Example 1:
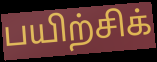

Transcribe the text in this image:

பயிற்சிக்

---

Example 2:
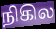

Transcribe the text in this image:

நிகில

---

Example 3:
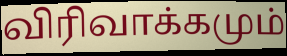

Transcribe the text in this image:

விரிவாக்கமும்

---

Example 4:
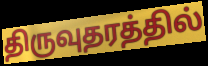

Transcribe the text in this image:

திருவுதரத்தில்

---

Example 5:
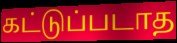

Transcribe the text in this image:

கட்டுப்படாத